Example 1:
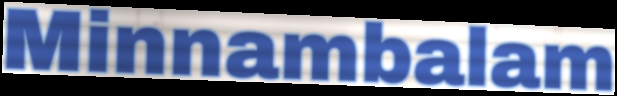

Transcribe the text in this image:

Minnambalam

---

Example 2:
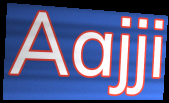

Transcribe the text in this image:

Aajji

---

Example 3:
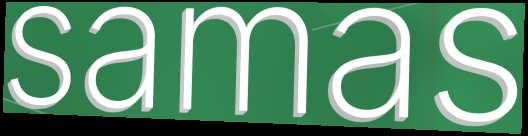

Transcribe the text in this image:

samas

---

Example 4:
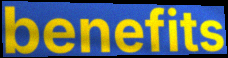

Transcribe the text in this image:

benefits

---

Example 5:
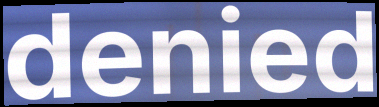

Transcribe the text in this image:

denied